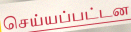
செய்யப்பட்டன